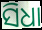
ସିଧା